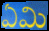
ఏమి